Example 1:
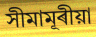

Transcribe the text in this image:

সীমামূৰীয়া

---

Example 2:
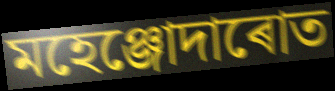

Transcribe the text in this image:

মহেঞ্জোদাৰোত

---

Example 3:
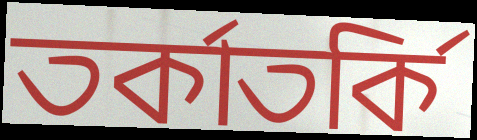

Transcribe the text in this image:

তৰ্কাতৰ্কি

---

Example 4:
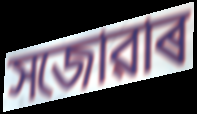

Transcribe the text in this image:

সজোৱাৰ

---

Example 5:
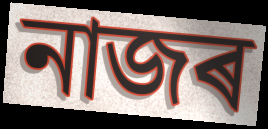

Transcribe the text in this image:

নাজৰ